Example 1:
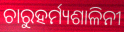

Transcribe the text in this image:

ଚାରୁହର୍ମ୍ୟଶାଳିନୀ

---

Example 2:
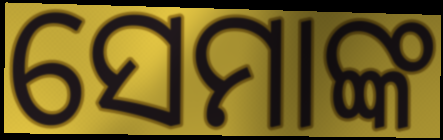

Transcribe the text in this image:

ସେମାଙ୍କ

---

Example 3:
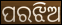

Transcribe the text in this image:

ପରଝିଅ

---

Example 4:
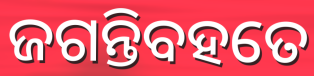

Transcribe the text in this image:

ଜଗନ୍ତିବହତେ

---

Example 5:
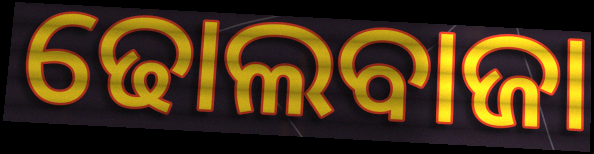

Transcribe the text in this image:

ଢୋଲବାଜା